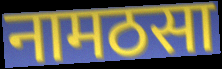
नामठसा